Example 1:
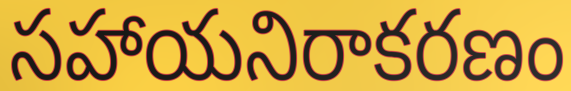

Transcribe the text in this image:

సహాయనిరాకరణం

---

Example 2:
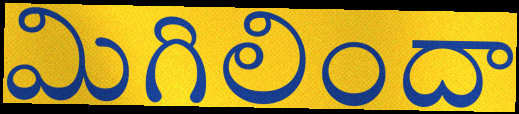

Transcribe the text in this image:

మిగిలిందా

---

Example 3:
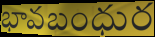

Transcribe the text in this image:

భావబంధుర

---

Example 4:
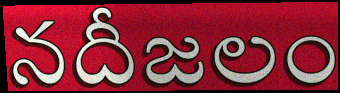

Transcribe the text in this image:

నదీజలం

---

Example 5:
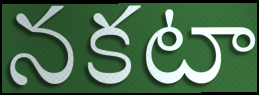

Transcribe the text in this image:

నకటా